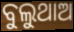
ବୁଲୁଥାଅ